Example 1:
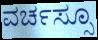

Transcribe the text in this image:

ವರ್ಚಸ್ಸೂ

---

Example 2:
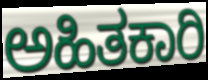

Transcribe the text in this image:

ಅಹಿತಕಾರಿ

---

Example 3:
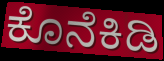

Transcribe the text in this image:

ಕೊನೆಕಿಡಿ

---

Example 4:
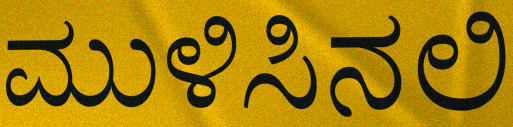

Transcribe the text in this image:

ಮುಳಿಸಿನಲಿ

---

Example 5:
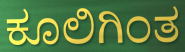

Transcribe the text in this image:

ಕೂಲಿಗಿಂತ